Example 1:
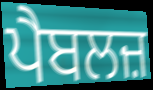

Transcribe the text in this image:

ਪੈਬਲਜ਼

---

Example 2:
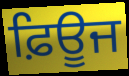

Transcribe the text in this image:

ਫ਼ਿਊਜ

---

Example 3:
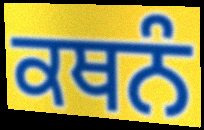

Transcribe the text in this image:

ਕਥਨੰ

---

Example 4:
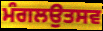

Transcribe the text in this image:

ਮੰਗਲਉਤਸਵ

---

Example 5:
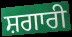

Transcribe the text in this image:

ਸ਼ਗਾਰੀ